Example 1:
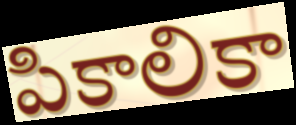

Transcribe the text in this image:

పికాలికా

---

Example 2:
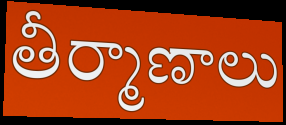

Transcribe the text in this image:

తీర్మాణాలు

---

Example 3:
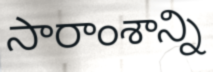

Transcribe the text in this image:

సారాంశాన్ని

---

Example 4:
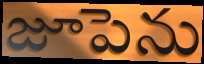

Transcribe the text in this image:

జూపెను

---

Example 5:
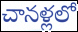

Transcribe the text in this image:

చానళ్లలో